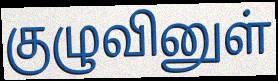
குழுவினுள்